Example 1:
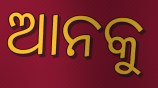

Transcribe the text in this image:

ଆନକୁ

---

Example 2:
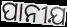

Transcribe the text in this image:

ପାନୀଯ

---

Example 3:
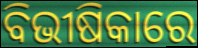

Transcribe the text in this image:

ବିଭୀଷିକାରେ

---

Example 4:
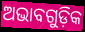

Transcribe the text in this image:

ଅଭାବଗୁଡ଼ିକ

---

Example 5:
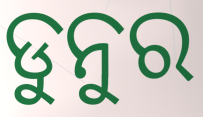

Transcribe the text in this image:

ଡୁନୁର